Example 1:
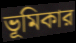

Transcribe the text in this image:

ভূমিকার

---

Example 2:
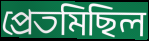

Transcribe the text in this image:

প্রেতমিছিল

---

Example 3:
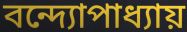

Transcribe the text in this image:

বন্দ্যোপাধ্যায়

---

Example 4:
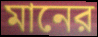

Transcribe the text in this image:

মানের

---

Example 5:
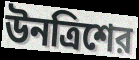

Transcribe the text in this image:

উনত্রিশের